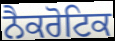
ਨੈਕਰੋਟਿਕ